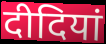
दीदियां